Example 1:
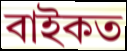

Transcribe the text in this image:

বাইকত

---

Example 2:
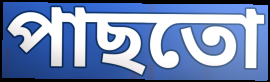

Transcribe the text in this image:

পাছতো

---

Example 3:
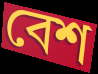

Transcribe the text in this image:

বেশ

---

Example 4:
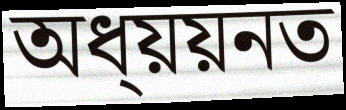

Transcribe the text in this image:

অধ্য়য়নত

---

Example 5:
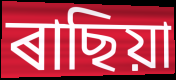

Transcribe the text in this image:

ৰাছিয়া